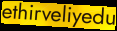
ethirveliyedu